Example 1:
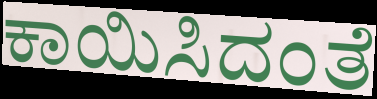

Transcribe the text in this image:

ಕಾಯಿಸಿದಂತೆ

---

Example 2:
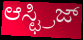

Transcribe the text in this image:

ಆಸ್ಟ್ರಿಜ್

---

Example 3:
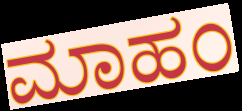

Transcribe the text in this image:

ಮಾಹಂ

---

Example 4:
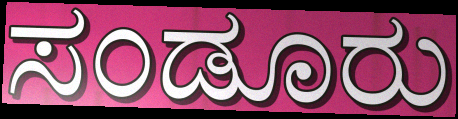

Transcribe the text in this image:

ಸಂಡೂರು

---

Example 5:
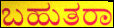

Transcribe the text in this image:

ಬಹುತರಾ